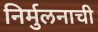
निर्मुलनाची